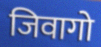
जिवागो